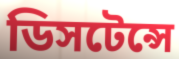
ডিসটেন্সে